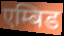
एम्बिड